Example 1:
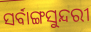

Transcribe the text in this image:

ସର୍ବାଙ୍ଗସୁନ୍ଦରୀ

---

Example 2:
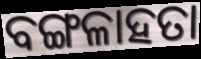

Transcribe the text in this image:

ବଙ୍ଗଳାହତା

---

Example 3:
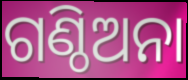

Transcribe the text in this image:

ଗଣ୍ଠିଅନା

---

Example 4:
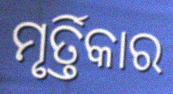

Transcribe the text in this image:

ମୃର୍ତ୍ତିକାର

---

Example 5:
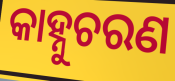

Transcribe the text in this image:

କାହ୍ନୁଚରଣ